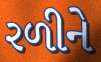
રળીને